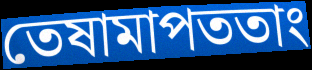
তেষামাপততাং